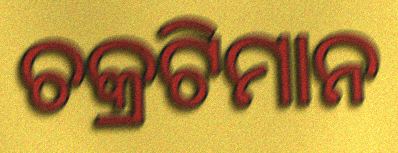
ଚକ୍ରଟିମାନ